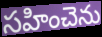
సహించెను